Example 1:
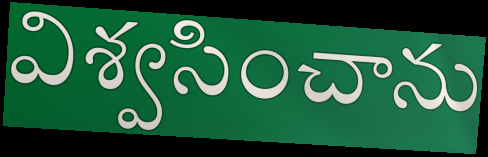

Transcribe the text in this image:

విశ్వసించాను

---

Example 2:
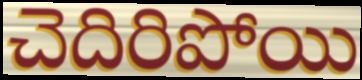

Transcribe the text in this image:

చెదిరిపోయి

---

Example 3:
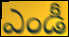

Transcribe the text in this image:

ఎండీ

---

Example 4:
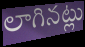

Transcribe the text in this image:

లాగినట్లు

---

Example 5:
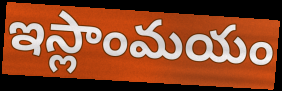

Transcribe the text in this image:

ఇస్లాంమయం